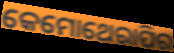
କେମୋଥେରାପିର